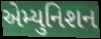
એમ્યુનિશન